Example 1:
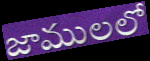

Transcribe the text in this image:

జాములలో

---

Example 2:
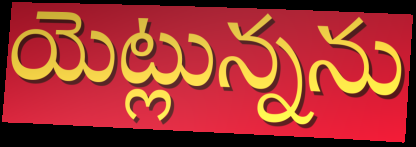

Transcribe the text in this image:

యెట్లున్నను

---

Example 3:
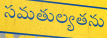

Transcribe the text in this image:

సమతుల్యతను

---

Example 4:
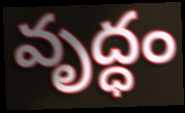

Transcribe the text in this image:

వృద్ధం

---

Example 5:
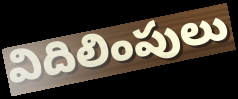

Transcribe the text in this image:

విదిలింపులు